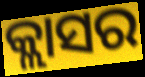
କ୍ଲାସର